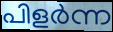
പിളർന്ന